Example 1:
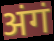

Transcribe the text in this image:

अंगं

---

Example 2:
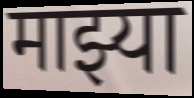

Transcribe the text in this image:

माझ्या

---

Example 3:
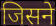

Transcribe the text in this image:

जिसने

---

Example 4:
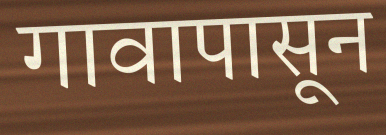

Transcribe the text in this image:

गावापासून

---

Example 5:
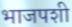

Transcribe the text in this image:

भाजपशी